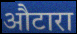
औटारा